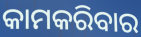
କାମକରିବାର